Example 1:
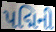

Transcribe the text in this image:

પદ્મિની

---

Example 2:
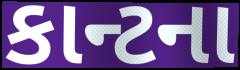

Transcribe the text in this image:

કાન્ટના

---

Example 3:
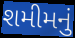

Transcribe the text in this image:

શમીમનું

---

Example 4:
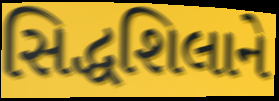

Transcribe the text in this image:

સિદ્ધશિલાને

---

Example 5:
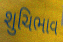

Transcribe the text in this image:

શુચિભાવ